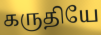
கருதியே